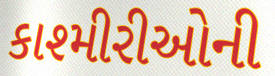
કાશ્મીરીઓની